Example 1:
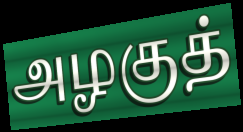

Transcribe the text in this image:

அழகுத்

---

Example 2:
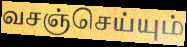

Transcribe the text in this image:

வசஞ்செய்யும்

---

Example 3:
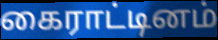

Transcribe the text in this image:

கைராட்டினம்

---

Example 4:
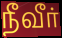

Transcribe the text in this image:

நீவீர்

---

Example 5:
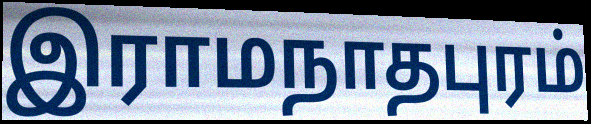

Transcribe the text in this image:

இராமநாதபுரம்